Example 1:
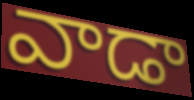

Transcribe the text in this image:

వాడా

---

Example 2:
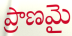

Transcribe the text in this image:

ప్రాణమై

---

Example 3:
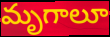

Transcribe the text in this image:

మృగాలూ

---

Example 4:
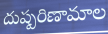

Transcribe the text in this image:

దుష్పరిణామాల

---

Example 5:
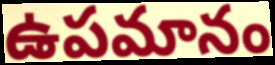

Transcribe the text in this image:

ఉపమానం